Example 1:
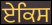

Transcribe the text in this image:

ਏਕਿਸ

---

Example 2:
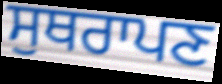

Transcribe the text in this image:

ਸੁਥਰਾਪਣ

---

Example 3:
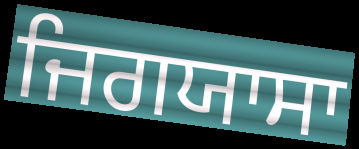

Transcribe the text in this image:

ਜਿਗਯਾਸਾ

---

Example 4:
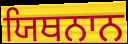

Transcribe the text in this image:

ਯਿਥਨਾਨ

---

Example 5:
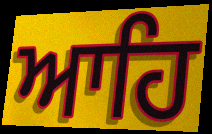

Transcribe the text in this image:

ਆਹਿ